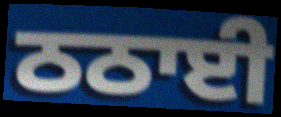
ਠਠਾਈ